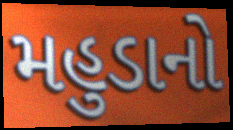
મહુડાનો